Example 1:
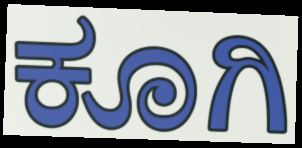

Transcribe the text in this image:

ಕೂಗಿ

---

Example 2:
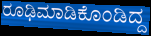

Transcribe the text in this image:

ರೂಢಿಮಾಡಿಕೊಂಡಿದ್ದ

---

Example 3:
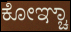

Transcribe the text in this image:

ಕೋಞ್ಚಾ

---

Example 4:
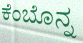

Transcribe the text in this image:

ಕೆಂಬೊನ್ನ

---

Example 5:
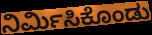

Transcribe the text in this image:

ನಿರ್ಮಿಸಿಕೊಂಡು